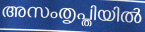
അസംതൃപ്തിയിൽ